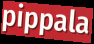
pippala